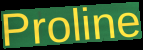
Proline